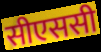
सीएससी